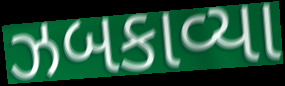
ઝબકાવ્યા